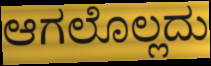
ಆಗಲೊಲ್ಲದು